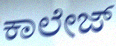
ಕಾಲೇಜ್